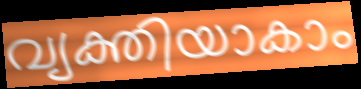
വ്യക്തിയാകാം